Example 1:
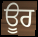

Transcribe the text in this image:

ਊਰ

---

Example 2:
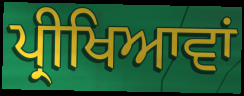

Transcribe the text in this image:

ਪ੍ਰੀਖਿਆਵਾਂ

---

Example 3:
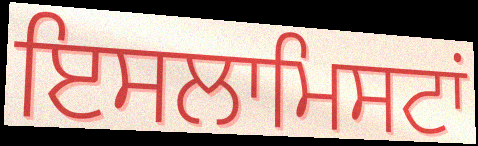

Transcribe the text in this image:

ਇਸਲਾਮਿਸਟਾਂ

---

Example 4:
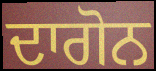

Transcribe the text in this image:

ਦਾਗੋਨ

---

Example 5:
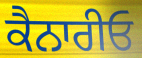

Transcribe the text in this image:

ਕੈਨਾਰੀਓ